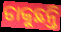
ଡାକୁଛନ୍ତି